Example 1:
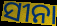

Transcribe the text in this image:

ସୀନା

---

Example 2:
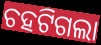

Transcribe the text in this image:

ଚହଟିଗଲା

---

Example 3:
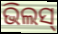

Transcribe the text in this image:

ଭିଲସ୍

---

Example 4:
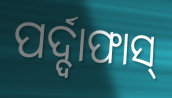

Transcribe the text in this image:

ପର୍ଦ୍ଦାଫାସ୍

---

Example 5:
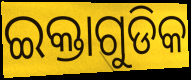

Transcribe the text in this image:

ଇକ୍ତାଗୁଡିକ